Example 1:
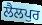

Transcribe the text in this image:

ਲੈਲਪੁਰ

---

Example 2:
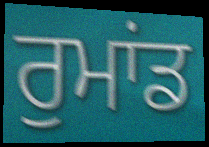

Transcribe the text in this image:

ਰੁਮਾਂਡ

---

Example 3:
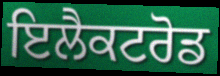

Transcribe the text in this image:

ਇਲੈਕਟਰੋਡ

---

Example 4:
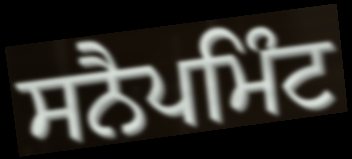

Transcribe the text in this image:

ਸਨੈਪਮਿੰਟ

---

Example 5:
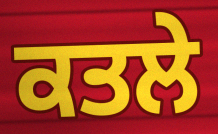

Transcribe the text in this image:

ਕਤਲੇ